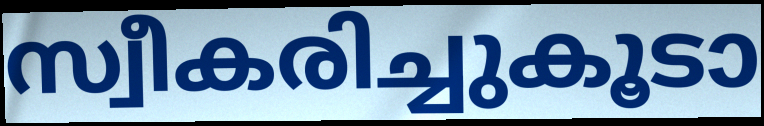
സ്വീകരിച്ചുകൂടാ